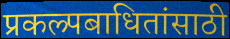
प्रकल्पबाधितांसाठी